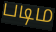
படிம